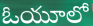
ఓయూలో